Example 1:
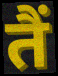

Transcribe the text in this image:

तैं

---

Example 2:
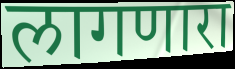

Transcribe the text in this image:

लागणारा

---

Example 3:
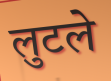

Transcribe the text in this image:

लुटले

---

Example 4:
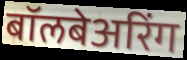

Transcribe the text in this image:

बॉलबेअरिंग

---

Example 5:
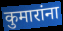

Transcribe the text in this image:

कुमारांना